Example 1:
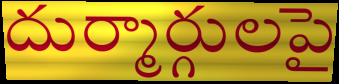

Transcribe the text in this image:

దుర్మార్గులపై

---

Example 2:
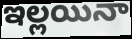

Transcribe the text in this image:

ఇల్లయినా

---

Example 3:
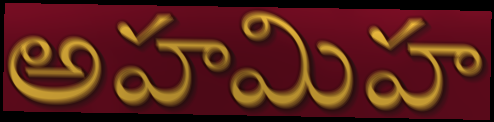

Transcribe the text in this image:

అహమిహ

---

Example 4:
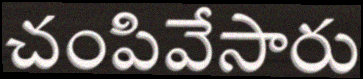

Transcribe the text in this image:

చంపివేసారు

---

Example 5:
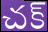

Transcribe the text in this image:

చక్